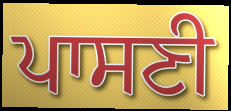
ਪਾਸਣੀ